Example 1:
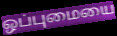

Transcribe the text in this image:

ஒப்புமையை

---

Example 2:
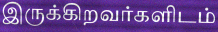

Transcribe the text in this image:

இருக்கிறவர்களிடம்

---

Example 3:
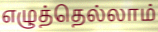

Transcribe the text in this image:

எழுத்தெல்லாம்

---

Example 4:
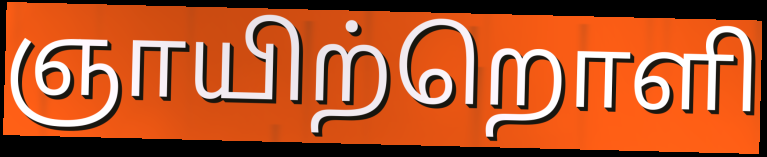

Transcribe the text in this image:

ஞாயிற்றொளி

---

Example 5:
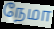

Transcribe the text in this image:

நேமா